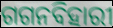
ଗଗନବିହାରୀ